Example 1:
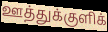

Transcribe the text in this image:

ஊத்துக்குளிக்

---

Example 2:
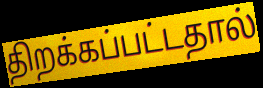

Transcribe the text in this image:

திறக்கப்பட்டதால்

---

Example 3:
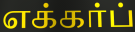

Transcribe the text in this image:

எக்கர்ப்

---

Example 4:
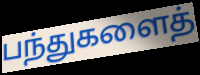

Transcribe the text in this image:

பந்துகளைத்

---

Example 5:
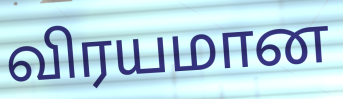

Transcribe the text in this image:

விரயமான